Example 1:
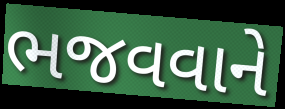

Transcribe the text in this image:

ભજવવાને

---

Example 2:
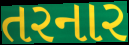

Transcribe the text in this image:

તરનાર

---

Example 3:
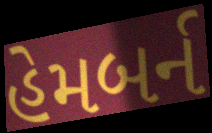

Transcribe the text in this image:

હેમબર્ન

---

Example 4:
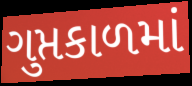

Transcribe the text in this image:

ગુપ્તકાળમાં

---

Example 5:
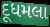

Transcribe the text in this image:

દૂધમલા